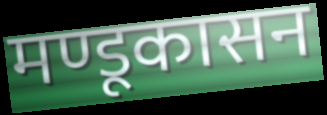
मण्डूकासन